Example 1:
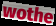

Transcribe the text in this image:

wothe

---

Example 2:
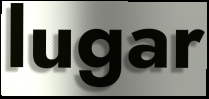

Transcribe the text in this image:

lugar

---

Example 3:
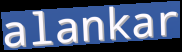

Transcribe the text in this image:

alankar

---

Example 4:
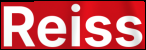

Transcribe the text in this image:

Reiss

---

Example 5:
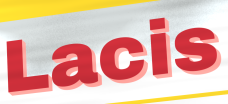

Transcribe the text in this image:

Lacis